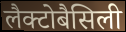
लैक्टोबैसिली